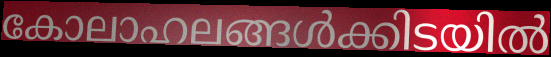
കോലാഹലങ്ങൾക്കിടയിൽ